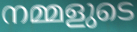
നമ്മളുടെ